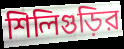
শিলিগুড়ির